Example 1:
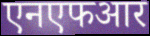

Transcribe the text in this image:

एनएफआर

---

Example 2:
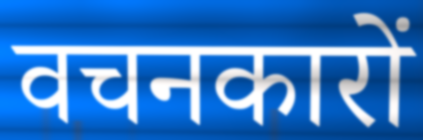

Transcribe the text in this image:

वचनकारों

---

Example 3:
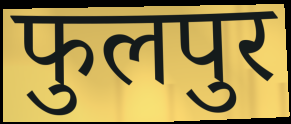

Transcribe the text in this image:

फुलपुर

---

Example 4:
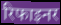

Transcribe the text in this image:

रिफाइनर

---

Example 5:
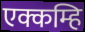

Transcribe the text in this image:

एक्कम्हि